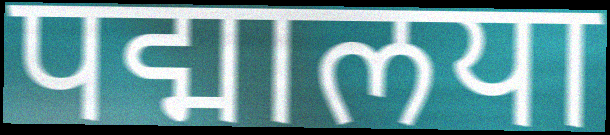
पद्मालया